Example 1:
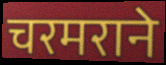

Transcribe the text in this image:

चरमराने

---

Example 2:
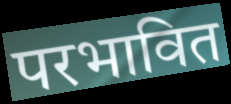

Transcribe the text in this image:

परभावित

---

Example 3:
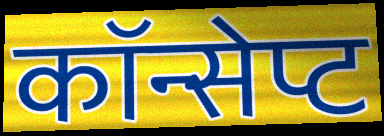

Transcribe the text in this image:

कॉन्‍सेप्‍ट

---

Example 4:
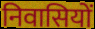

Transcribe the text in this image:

निवासियों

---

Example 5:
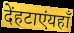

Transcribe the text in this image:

देंहटाएंयहाँ